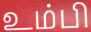
உம்பி